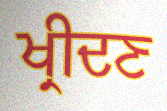
ਖ੍ਰੀਦਣ